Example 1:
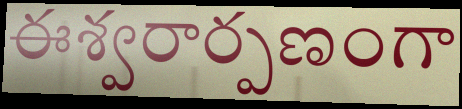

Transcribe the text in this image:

ఈశ్వరార్పణంగా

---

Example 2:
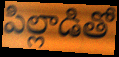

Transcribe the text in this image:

పిల్లాడితో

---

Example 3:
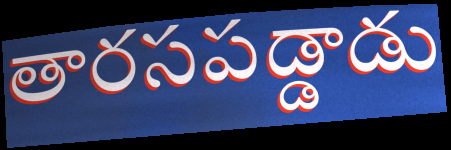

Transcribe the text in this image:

తారసపడ్డాడు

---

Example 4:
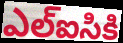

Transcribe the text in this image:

ఎల్ఐసికి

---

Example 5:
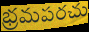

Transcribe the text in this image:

భ్రమపరచు